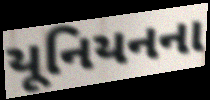
યૂનિયનના